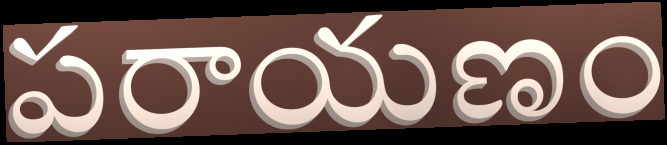
పరాయణం